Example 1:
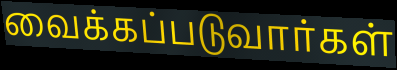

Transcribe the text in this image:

வைக்கப்படுவார்கள்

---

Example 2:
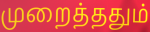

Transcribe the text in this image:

முறைத்ததும்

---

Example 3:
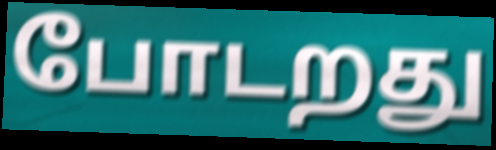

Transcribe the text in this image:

போடறது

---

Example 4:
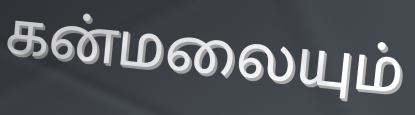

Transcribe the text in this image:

கன்மலையும்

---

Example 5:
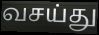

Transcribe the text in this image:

வசய்து